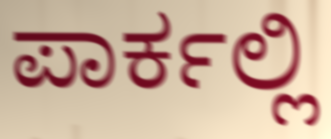
ಪಾರ್ಕಲ್ಲಿ